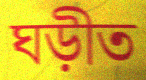
ঘড়ীত